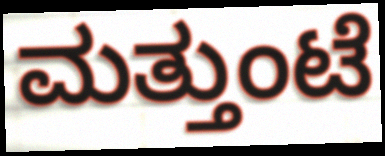
ಮತ್ತುಂಟೆ